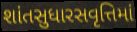
શાંતસુધારસવૃત્તિમાં